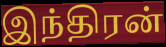
இந்திரன்